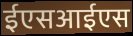
ईएसआईएस